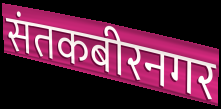
संतकबीरनगर